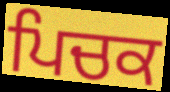
ਪਿਚਕ